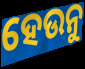
ହେଉନୁ